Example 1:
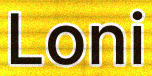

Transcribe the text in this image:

Loni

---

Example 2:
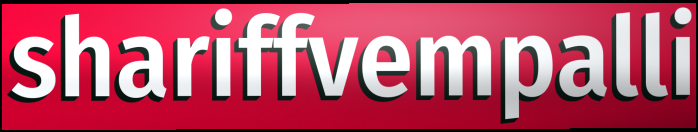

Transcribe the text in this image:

shariffvempalli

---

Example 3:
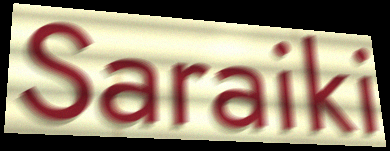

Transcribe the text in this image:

Saraiki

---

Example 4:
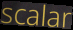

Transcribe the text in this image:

scalar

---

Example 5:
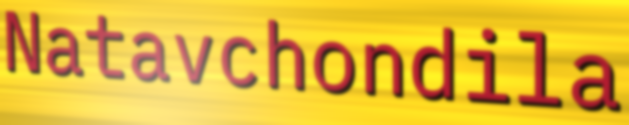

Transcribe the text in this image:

Natavchondila